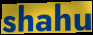
shahu